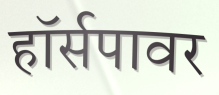
हॉर्सपावर